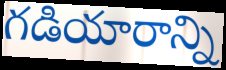
గడియారాన్ని